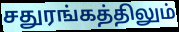
சதுரங்கத்திலும்